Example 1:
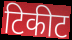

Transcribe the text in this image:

टिकीट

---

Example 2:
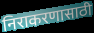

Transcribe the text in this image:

निराकरणासाठी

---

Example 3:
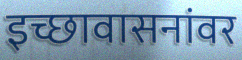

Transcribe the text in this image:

इच्छावासनांवर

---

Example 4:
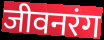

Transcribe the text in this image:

जीवनरंग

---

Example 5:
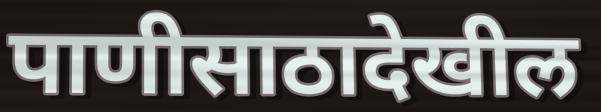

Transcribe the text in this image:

पाणीसाठादेखील